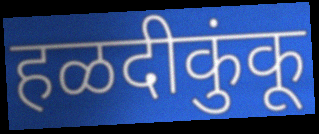
हळदीकुंकू